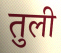
तुली